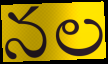
నల